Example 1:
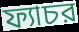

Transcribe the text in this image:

ফ্যাচর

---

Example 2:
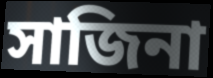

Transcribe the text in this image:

সাজিনা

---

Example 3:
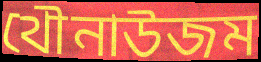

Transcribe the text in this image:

থৌনাউজম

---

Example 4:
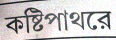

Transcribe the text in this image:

কষ্টিপাথরে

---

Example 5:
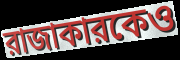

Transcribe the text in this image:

রাজাকারকেও